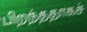
பிறந்ததாகச்